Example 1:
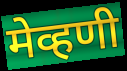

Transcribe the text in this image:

मेव्हणी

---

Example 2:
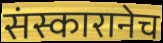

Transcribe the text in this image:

संस्कारानेच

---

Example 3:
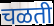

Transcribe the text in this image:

चळती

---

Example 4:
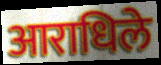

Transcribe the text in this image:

आराधिले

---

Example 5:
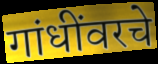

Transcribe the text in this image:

गांधींवरचे